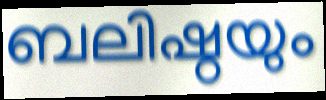
ബലിഷ്ഠയും